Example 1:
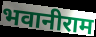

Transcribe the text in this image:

भवानीराम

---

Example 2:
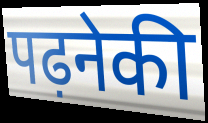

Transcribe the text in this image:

पढ़नेकी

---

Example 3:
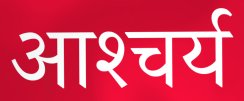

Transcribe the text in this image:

आश्‍चर्य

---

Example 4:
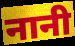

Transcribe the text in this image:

नानी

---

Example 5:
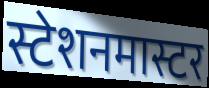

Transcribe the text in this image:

स्टेशनमास्टर